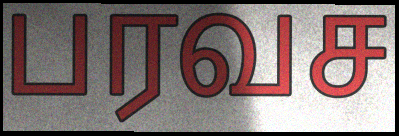
பரவச